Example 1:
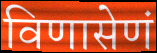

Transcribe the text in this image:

विणासेणं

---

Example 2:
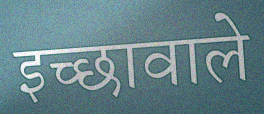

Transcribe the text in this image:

इच्छावाले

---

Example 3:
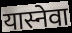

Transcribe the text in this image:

यास्नेवा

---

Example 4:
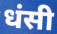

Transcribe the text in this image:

धंसी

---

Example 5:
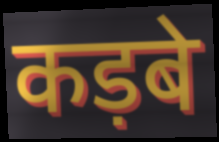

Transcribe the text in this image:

कड़बे